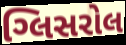
ગ્લિસરોલ